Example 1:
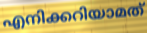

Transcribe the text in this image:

എനിക്കറിയാമത്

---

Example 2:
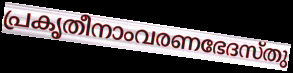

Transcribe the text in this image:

പ്രകൃതീനാംവരണഭേദസ്തു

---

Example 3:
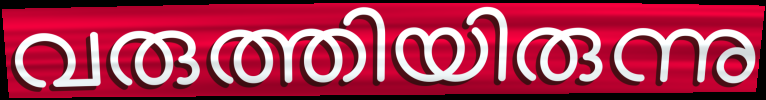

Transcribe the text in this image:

വരുത്തിയിരുന്നു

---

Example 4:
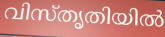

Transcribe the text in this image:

വിസ്തൃതിയിൽ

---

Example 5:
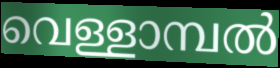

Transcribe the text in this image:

വെള്ളാമ്പൽ